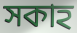
সকাহ